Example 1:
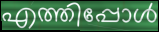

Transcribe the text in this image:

എത്തിപ്പോൾ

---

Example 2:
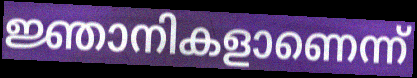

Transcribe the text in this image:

ജ്ഞാനികളാണെന്ന്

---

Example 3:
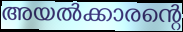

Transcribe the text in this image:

അയൽക്കാരന്റെ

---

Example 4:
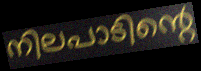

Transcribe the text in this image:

നിലപാടിന്റെ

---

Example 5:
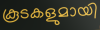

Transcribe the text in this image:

കൂടകളുമായി